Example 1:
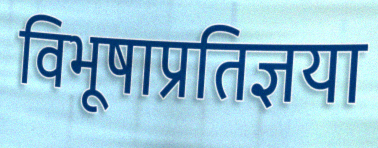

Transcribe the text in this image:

विभूषाप्रतिज्ञया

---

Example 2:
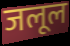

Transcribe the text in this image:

जलूल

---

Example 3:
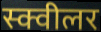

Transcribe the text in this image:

स्क्वीलर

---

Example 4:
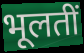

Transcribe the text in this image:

भूलतीं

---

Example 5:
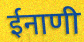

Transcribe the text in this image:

ईनाणी